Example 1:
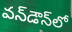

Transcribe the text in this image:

వన్‌డౌన్‌లో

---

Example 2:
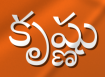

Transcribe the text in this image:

కృష్ణు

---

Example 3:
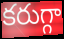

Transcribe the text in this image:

కరుగ్గా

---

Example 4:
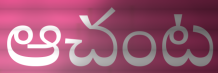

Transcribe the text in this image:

ఆచంట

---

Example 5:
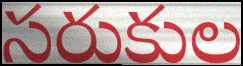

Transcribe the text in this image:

సరుకుల